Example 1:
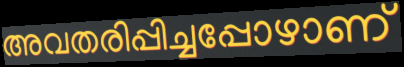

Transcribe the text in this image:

അവതരിപ്പിച്ചപ്പോഴാണ്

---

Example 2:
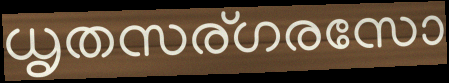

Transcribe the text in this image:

ധൃതസര്ഗരസോ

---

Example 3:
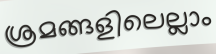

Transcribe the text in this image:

ശ്രമങ്ങളിലെല്ലാം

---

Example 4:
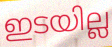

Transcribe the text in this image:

ഇടയില്ല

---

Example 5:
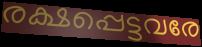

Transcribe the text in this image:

രക്ഷപ്പെട്ടവരേ